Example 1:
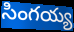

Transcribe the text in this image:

సింగయ్య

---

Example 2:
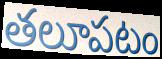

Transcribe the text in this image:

తలూపటం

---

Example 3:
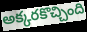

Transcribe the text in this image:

అక్కరకొచ్చింది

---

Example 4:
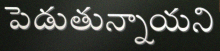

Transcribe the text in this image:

పెడుతున్నాయని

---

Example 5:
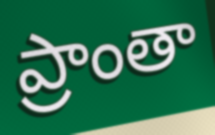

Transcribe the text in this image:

ప్రాంతా